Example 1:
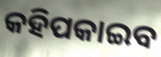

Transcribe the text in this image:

କହିପକାଇବ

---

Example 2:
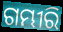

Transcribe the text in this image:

ଗମ୍ଭୀରି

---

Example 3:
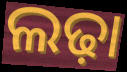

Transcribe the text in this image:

ଲଢ଼ା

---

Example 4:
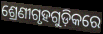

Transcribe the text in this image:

ଶ୍ରେଣୀଗୃହଗୁଡ଼ିକରେ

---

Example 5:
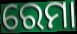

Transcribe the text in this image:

ରେମା